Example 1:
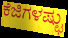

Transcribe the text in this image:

ಕೆಜಿಗಳಷ್ಟು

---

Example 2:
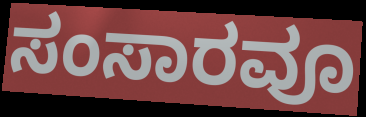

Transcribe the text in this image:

ಸಂಸಾರವೂ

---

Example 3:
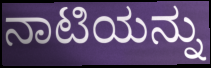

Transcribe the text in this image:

ನಾಟಿಯನ್ನು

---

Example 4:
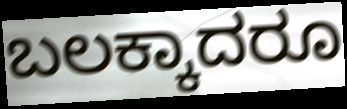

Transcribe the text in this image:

ಬಲಕ್ಕಾದರೂ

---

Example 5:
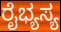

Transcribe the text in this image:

ರೈಭ್ಯಸ್ಯ